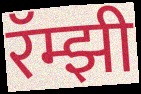
रॅम्झी